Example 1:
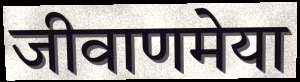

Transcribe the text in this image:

जीवाणमेया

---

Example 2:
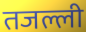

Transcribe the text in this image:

तजल्ली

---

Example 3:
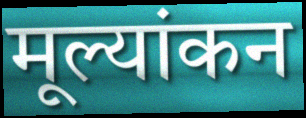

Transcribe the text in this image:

मूल्यांकन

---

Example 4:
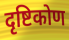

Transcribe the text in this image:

दृष्टिकोण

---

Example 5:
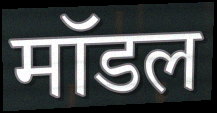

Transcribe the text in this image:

मॉडल